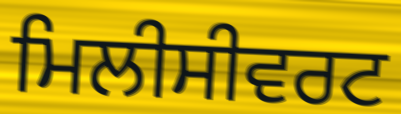
ਮਿਲੀਸੀਵਰਟ